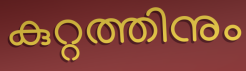
കുറ്റത്തിനും